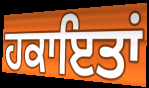
ਹਕਾਇਤਾਂ